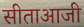
सीताआजी